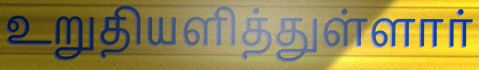
உறுதியளித்துள்ளார்